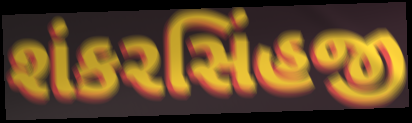
શંકરસિંહજી